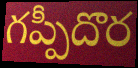
గప్పీదొర